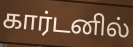
கார்டனில்